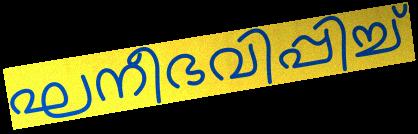
ഘനീഭവിപ്പിച്ച്